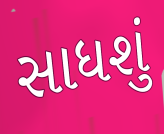
સાધશું